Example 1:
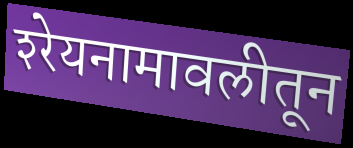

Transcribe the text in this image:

श्रेयनामावलीतून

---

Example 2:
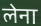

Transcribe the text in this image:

लेना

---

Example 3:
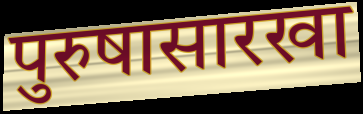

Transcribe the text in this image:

पुरुषासारखा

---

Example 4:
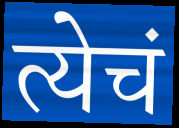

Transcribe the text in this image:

त्येचं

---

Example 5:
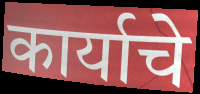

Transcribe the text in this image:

कार्याचे